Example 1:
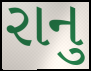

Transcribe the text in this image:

રાનુ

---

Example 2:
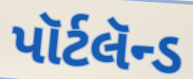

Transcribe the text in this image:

પૉર્ટલૅન્ડ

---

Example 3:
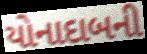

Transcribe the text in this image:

યોનાદાબની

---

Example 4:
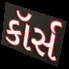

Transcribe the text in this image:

કૉર્સ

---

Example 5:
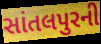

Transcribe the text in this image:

સાંતલપુરની